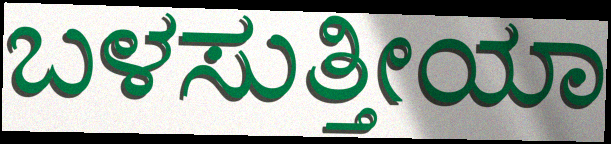
ಬಳಸುತ್ತೀಯಾ